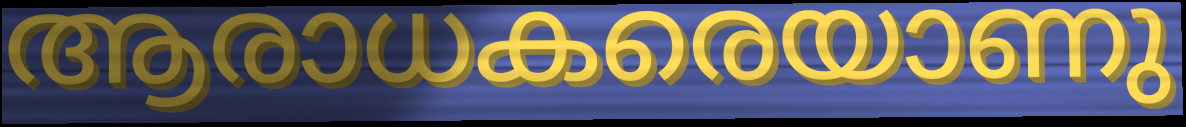
ആരാധകരെയാണു